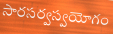
సారసర్వస్వయోగం